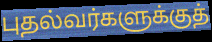
புதல்வர்களுக்குத்